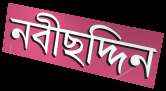
নবীছদ্দিন